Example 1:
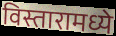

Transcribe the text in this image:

विस्तारामध्ये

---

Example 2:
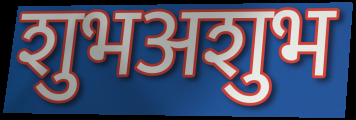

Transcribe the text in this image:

शुभअशुभ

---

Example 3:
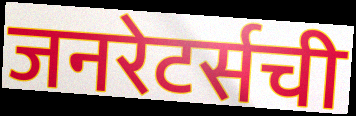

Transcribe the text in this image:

जनरेटर्सची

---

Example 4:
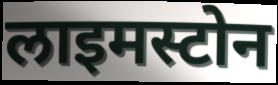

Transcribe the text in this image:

लाइमस्टोन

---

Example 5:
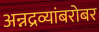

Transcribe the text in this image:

अन्नद्रव्यांबरोबर